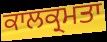
ਕਾਲਕ੍ਰਮਤਾ